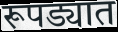
रूपड्यात